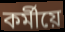
কৰ্মীয়ে